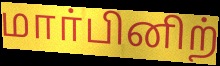
மார்பினிற்